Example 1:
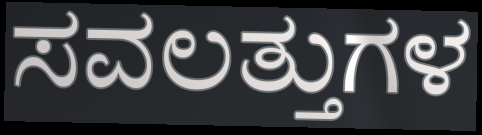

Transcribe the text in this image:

ಸವಲತ್ತುಗಳ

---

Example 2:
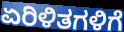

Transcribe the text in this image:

ಏರಿಳಿತಗಳಿಗೆ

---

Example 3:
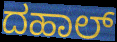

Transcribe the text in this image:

ದಹಾಲ್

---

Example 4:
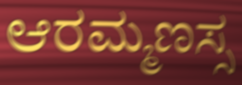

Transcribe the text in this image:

ಆರಮ್ಮಣಸ್ಸ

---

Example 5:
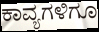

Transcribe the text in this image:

ಕಾವ್ಯಗಳಿಗೂ